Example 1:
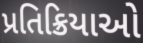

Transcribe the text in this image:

પ્રતિક્રિયાઓ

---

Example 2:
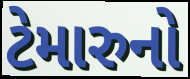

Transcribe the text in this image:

ટેમારુનો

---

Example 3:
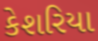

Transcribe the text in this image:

કેશરિયા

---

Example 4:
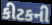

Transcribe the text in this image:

કીટકની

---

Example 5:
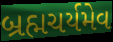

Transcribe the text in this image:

બ્રહ્મચર્યમેવ